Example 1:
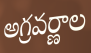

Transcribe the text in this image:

అగ్రవర్ణాల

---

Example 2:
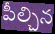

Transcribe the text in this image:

పీల్చిన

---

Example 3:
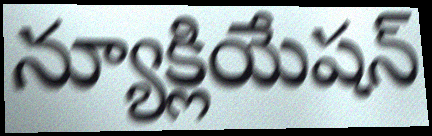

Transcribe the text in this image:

న్యూక్లియేషన్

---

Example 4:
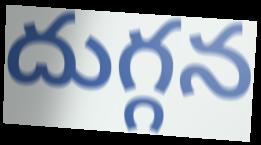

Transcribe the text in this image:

దుగ్గన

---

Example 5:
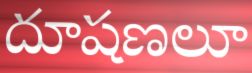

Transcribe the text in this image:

దూషణలూ